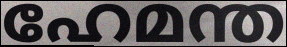
ഹേമന്ത